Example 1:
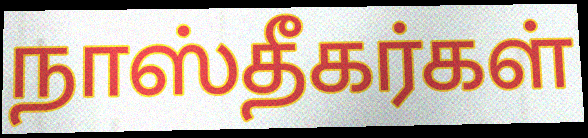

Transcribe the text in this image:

நாஸ்தீகர்கள்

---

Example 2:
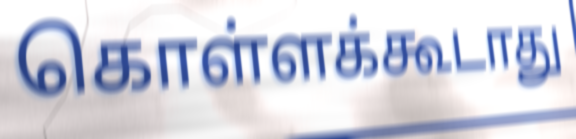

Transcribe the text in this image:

கொள்ளக்கூடாது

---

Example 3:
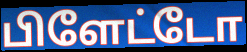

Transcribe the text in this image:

பிளேட்டோ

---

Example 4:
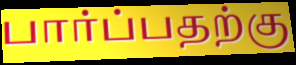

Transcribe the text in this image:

பார்ப்பதற்கு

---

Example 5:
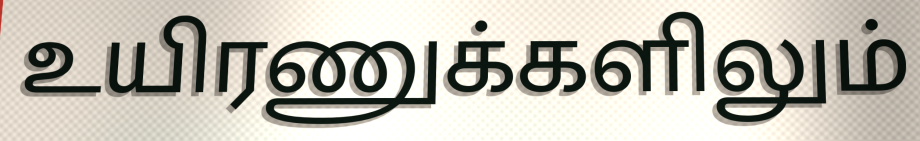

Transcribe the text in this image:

உயிரணுக்களிலும்